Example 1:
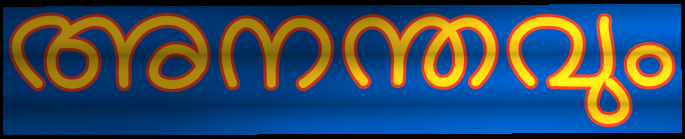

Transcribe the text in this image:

അനന്തവും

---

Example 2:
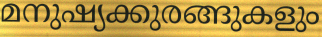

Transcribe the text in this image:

മനുഷ്യക്കുരങ്ങുകളും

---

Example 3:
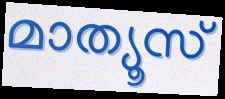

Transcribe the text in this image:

മാത്യൂസ്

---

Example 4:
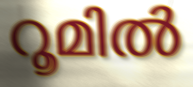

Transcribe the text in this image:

റൂമിൽ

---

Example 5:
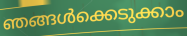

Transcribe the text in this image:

ഞങ്ങൾക്കെടുക്കാം